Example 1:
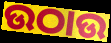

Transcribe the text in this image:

ଉଠାଉ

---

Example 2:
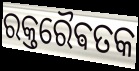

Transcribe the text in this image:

ରକ୍ତରୈଵତକ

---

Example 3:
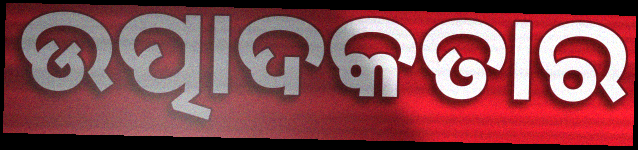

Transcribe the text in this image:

ଉତ୍ପାଦକତାର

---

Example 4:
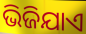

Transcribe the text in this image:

ଭିଜିଯାଏ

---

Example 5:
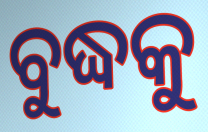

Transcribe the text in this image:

ବୁଦ୍ଧକୁ